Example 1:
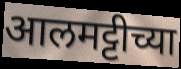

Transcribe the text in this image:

आलमट्टीच्या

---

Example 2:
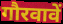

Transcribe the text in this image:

गौरवावें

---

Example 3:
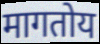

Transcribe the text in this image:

मागतोय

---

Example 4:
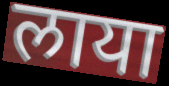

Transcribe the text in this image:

लाया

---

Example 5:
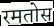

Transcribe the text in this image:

रमतोस